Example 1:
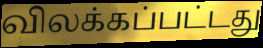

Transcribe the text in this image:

விலக்கப்பட்டது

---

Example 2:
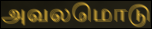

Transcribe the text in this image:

அவலமொடு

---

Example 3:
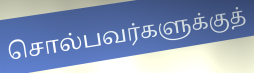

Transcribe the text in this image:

சொல்பவர்களுக்குத்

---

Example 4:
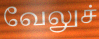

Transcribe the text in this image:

வேலுச்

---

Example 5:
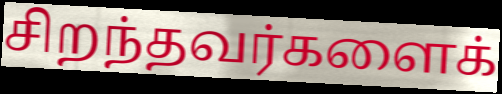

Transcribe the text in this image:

சிறந்தவர்களைக்